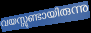
വയസ്സുണ്ടായിരുന്നു